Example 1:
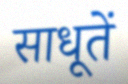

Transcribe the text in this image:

साधूतें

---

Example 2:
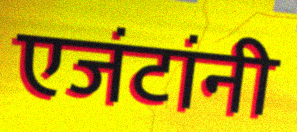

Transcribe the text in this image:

एजंटांनी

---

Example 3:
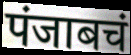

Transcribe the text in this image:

पंजाबचं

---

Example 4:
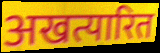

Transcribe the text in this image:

अखत्यारित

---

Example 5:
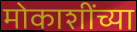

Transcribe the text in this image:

मोकाशींच्या